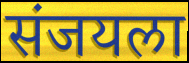
संजयला